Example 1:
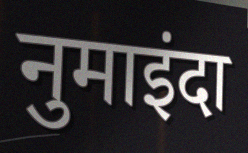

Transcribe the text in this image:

नुमाइंदा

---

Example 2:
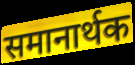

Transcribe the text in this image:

समानार्थक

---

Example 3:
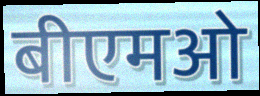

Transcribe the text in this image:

बीएमओ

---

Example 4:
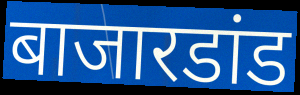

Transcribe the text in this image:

बाजारडांड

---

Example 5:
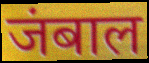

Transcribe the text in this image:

जंबाल